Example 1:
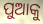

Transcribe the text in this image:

ପୁଆକୁ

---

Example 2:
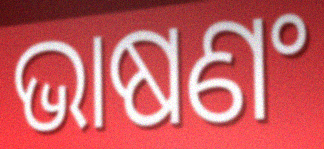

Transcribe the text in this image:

ଭାଷଣଂ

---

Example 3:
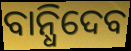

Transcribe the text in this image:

ବାନ୍ଧିଦେବ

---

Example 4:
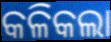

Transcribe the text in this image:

କଳିକଲା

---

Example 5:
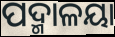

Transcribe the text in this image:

ପଦ୍ମାଳୟା